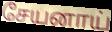
சேயனாய்